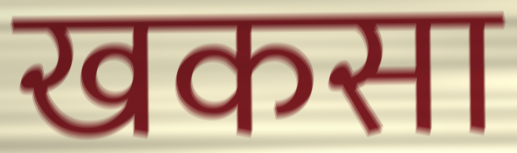
खकसा